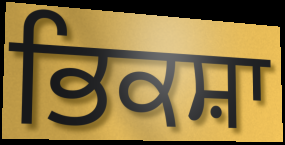
ਭਿਕਸ਼ਾ